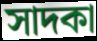
সাদকা